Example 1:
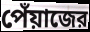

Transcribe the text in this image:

পেঁয়াজের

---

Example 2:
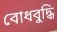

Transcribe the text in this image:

বোধবুদ্ধি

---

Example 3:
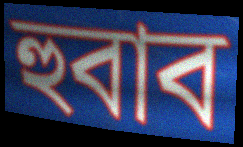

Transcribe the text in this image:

হুবাব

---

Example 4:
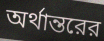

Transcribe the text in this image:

অর্থান্তরের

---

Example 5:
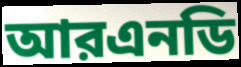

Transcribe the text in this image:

আরএনডি